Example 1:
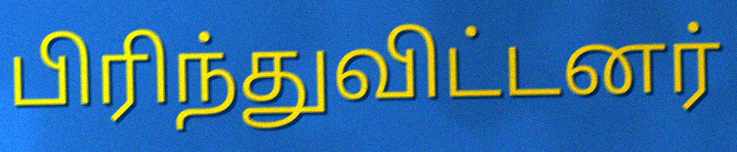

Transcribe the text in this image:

பிரிந்துவிட்டனர்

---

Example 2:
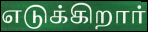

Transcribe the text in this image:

எடுக்கிறார்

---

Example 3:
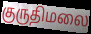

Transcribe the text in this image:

குருதிமலை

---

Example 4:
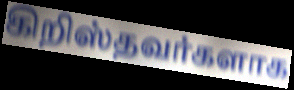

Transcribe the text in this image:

கிறிஸ்தவர்களாக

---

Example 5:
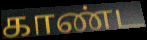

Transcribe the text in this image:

காண்ட